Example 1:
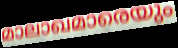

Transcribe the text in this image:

മാലാഖമാരെയും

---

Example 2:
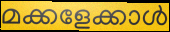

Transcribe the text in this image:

മക്കളേക്കാൾ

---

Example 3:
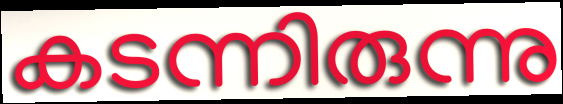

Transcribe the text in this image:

കടന്നിരുന്നു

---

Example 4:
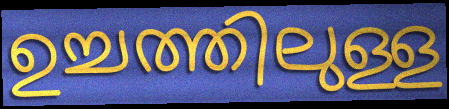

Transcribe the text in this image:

ഉച്ചത്തിലുള്ള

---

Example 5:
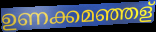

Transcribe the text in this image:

ഉണക്കമഞ്ഞള്